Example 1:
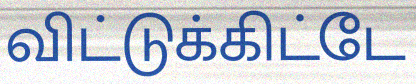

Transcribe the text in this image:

விட்டுக்கிட்டே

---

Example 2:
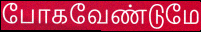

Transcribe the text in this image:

போகவேண்டுமே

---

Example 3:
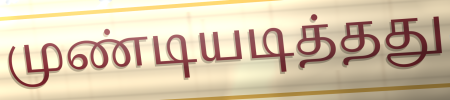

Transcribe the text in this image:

முண்டியடித்தது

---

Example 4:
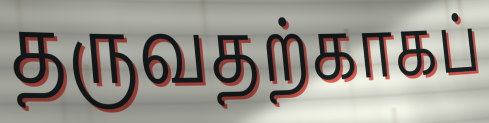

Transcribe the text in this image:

தருவதற்காகப்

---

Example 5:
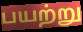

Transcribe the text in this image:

பயற்று